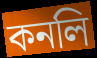
কনলি